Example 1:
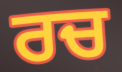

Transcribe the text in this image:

ਰਚ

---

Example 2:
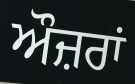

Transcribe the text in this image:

ਔਜ਼ਰਾਂ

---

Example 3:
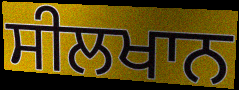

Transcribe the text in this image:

ਸੀਲਖਾਨ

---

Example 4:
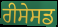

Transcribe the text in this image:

ਰੀਸੇਸਡ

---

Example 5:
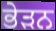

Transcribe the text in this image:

ਭੇੜਨ